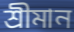
শ্রীমান